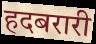
हदबरारी